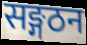
सङ्गठन